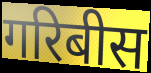
गरिबीस